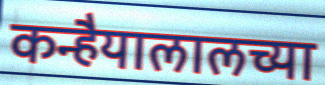
कन्हैयालालच्या